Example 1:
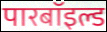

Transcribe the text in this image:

पारबॉइल्ड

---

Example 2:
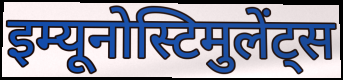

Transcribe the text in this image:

इम्यूनोस्टिमुलेंट्स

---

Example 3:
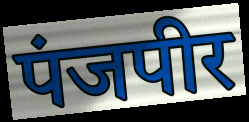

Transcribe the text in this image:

पंजपीर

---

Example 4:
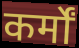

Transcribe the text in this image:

कर्मों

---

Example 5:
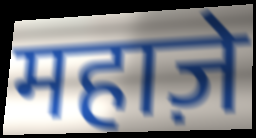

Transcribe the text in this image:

महाज़े